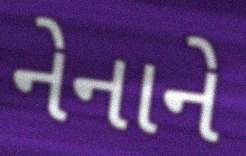
નેનાને